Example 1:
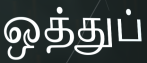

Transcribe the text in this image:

ஒத்துப்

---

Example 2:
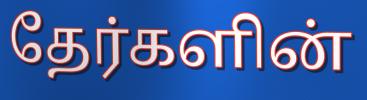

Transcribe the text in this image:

தேர்களின்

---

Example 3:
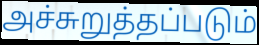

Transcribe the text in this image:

அச்சுறுத்தப்படும்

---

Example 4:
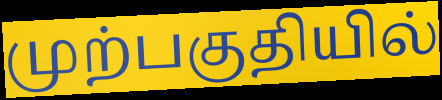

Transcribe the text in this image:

முற்பகுதியில்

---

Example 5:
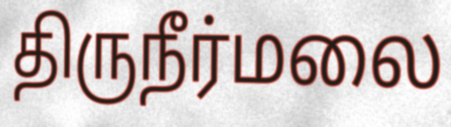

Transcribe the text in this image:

திருநீர்மலை